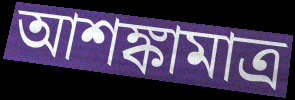
আশঙ্কামাত্র